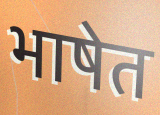
भाषेत